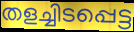
തളച്ചിടപ്പെട്ട